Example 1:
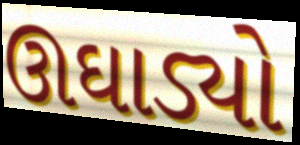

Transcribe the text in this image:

ઊઘાડ્યો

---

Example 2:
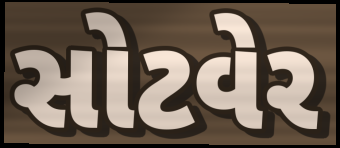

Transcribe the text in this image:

સોટવેર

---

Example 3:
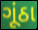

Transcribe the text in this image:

ગૂંઠા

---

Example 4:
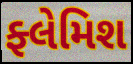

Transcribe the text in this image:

ફ્લેમિશ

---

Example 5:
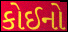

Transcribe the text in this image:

કોઈનો